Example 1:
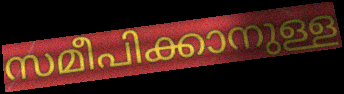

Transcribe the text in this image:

സമീപിക്കാനുള്ള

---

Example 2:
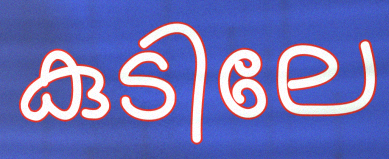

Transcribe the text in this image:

കുടിലേ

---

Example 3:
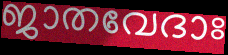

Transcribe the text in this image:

ജാതവേദാഃ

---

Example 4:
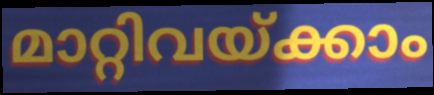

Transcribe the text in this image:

മാറ്റിവയ്ക്കാം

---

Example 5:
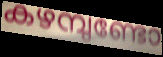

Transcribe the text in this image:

കഴമ്പുണ്ടോ